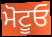
ਮੋਟੂਓ